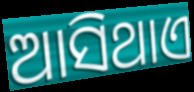
ଆସିଥାଏ